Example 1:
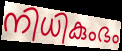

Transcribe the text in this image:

നിധികുംഭം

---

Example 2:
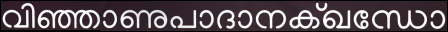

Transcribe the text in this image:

വിഞ്ഞാണുപാദാനക്ഖന്ധോ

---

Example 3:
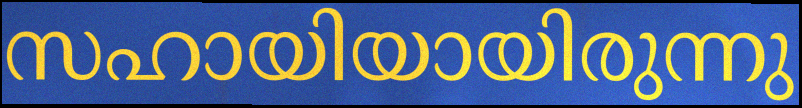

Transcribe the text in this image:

സഹായിയായിരുന്നു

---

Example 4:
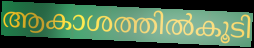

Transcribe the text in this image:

ആകാശത്തിൽകൂടി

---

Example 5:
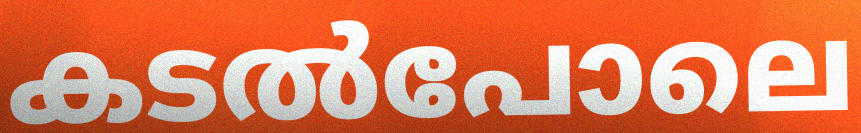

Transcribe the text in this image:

കടൽപോലെ